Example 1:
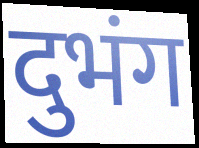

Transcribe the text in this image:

दुभंग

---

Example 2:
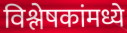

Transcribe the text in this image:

विश्लेषकांमध्ये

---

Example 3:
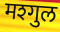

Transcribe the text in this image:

मश्गुल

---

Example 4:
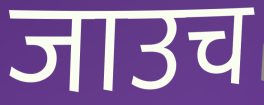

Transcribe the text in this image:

जाउच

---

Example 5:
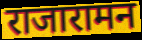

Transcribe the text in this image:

राजारामन